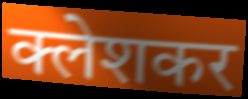
क्लेशकर